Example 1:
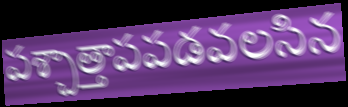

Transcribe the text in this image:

పశ్చాత్తాపపడవలసిన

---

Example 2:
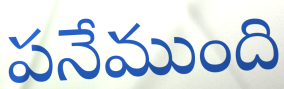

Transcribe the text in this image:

పనేముంది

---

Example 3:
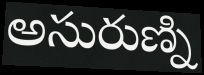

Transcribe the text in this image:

అసురుణ్ని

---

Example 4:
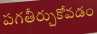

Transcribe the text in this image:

పగతీర్చుకోవడం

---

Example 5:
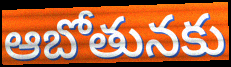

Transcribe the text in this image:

ఆబోతునకు